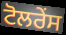
ਟੋਲਰੇਂਸ